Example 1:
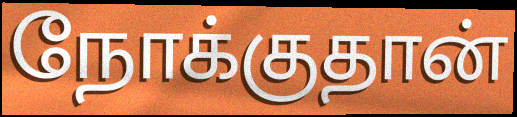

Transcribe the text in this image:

நோக்குதான்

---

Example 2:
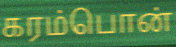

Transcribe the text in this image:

கரம்பொன்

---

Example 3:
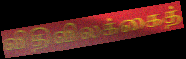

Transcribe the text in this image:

விதிவிலக்கைத்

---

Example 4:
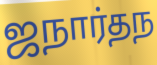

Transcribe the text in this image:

ஜநார்தந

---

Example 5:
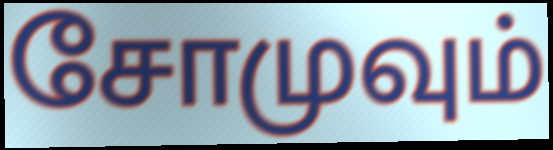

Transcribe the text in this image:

சோமுவும்